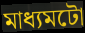
মাধ্যমটো